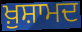
ਖ਼ੁਸ਼ਾਮਦ